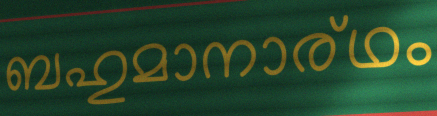
ബഹുമാനാര്ഥം